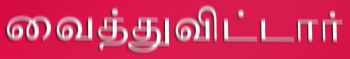
வைத்துவிட்டார்